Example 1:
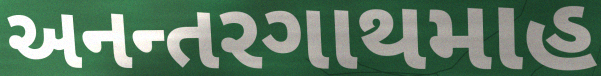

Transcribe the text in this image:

અનન્તરગાથમાહ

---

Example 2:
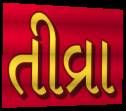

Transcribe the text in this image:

તીવ્રા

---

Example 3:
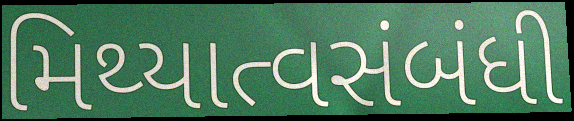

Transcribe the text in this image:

મિથ્યાત્વસંબંધી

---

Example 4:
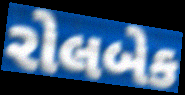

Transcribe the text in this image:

રોલબેક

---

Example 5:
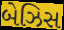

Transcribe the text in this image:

બેઝિસ